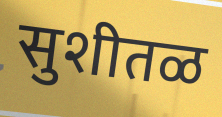
सुशीतळ